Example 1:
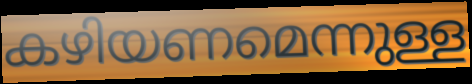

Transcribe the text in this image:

കഴിയണമെന്നുള്ള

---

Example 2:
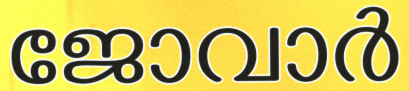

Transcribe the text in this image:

ജോവാർ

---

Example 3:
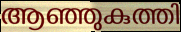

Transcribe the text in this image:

ആഞ്ഞുകുത്തി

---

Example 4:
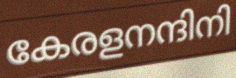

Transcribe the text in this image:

കേരളനന്ദിനി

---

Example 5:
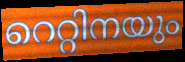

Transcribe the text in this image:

റെറ്റിനയും